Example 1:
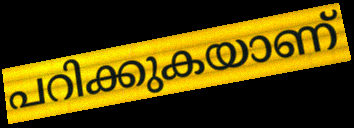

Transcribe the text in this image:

പറിക്കുകയാണ്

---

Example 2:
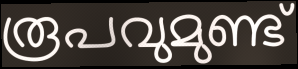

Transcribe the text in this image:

രൂപവുമുണ്ട്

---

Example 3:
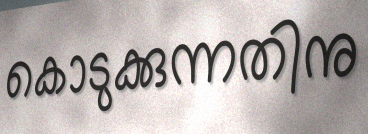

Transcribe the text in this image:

കൊടുക്കുന്നതിനു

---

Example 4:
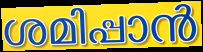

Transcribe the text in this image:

ശമിപ്പാൻ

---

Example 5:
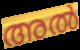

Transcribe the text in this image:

അൽ